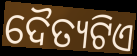
ଦୈତ୍ୟଟିଏ